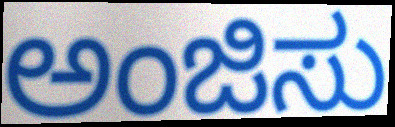
ಅಂಜಿಸು